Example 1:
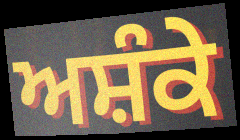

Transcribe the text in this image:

ਅਸ਼ੰਕੇ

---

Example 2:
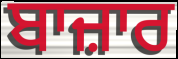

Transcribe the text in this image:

ਬਾਜ਼ਾਰ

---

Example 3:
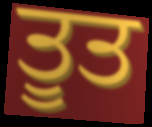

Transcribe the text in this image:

ਤੂਤ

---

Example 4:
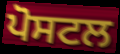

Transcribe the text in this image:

ਪੋਸਟਲ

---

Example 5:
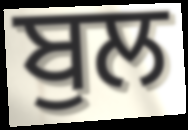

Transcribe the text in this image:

ਬੁਲ